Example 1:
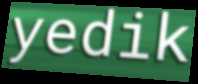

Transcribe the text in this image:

yedik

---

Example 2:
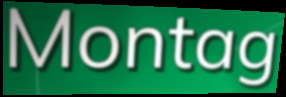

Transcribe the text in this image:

Montag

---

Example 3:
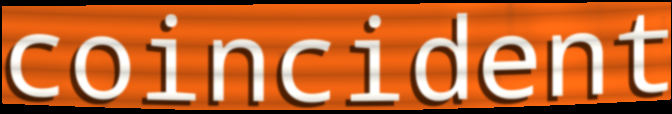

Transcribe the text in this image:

coincident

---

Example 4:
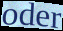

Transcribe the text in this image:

oder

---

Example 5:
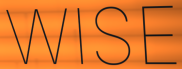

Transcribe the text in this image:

WISE